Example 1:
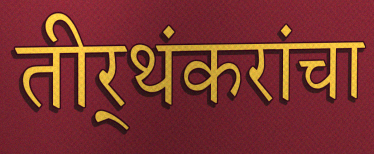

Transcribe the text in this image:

तीर्थंकरांचा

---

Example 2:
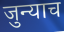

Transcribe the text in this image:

जुन्याच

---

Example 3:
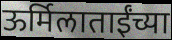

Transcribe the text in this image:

ऊर्मिलाताईंच्या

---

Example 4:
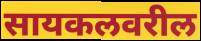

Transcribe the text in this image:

सायकलवरील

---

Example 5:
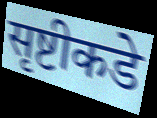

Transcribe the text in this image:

सृष्टीकडे